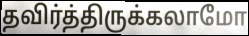
தவிர்த்திருக்கலாமோ